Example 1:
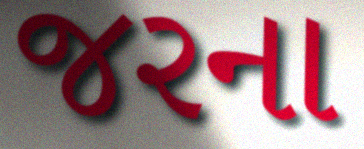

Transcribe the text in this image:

જરના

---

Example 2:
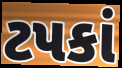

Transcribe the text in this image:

ટપકાં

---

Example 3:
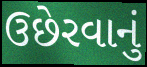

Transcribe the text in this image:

ઉછેરવાનું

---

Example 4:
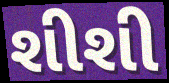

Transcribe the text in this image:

શીશી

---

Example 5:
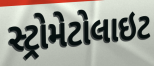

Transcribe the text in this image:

સ્ટ્રોમેટોલાઇટ